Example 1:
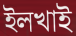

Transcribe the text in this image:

ইলখাই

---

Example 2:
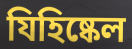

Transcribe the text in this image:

যিহিষ্কেল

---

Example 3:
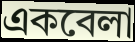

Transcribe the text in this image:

একবেলা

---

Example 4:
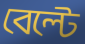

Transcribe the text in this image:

বেল্টে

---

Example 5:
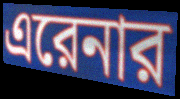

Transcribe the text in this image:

এরেনার